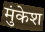
मुंकेश